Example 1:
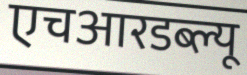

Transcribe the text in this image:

एचआरडब्ल्यू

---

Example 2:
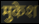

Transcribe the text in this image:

मुकेश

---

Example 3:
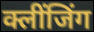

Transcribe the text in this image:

क्लींजिंग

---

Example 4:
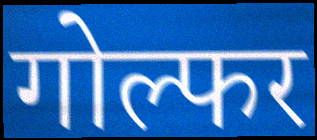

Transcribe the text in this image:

गोल्फर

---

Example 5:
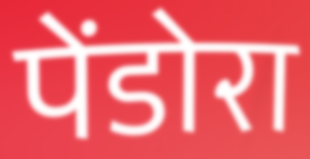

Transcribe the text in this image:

पेंडोरा